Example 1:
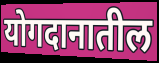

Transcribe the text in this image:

योगदानातील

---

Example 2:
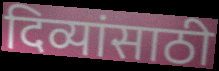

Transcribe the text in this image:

दिव्यांसाठी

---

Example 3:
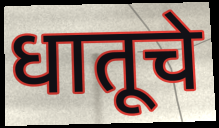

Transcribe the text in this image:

धातूचे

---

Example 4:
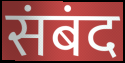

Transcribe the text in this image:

संबंद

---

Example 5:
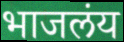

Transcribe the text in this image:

भाजलंय